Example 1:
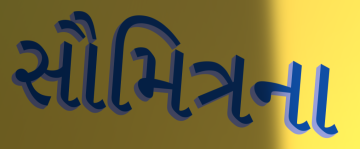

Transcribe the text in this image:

સૌમિત્રના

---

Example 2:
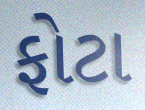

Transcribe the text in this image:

ફોટા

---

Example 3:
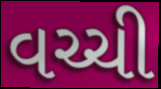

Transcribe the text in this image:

વચ્ચી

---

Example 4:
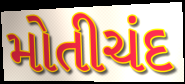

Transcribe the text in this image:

મોતીચંદ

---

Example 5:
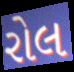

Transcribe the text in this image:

રોલ